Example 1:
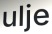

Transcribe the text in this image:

ulje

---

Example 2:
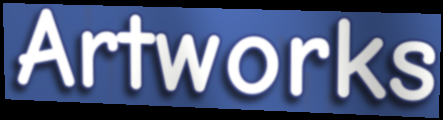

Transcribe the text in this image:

Artworks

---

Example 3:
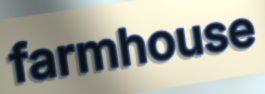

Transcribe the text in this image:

farmhouse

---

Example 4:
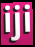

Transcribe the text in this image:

iji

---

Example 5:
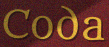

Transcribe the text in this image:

Coda